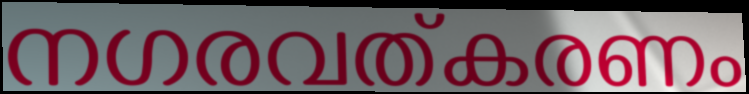
നഗരവത്കരണം